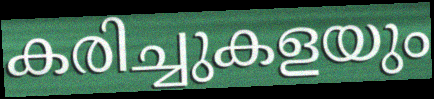
കരിച്ചുകളയും